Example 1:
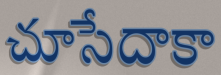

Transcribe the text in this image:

చూసేదాకా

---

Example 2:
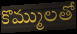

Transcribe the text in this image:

కొమ్ములతో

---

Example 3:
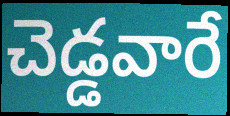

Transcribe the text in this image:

చెడ్డవారే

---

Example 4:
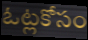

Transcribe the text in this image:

ఓట్లకోసం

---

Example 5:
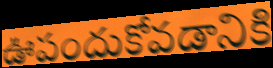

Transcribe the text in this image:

ఊపందుకోవడానికి